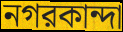
নগরকান্দা